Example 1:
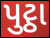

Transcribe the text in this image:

પુટ્ઠા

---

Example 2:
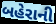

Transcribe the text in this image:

બહેરાની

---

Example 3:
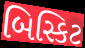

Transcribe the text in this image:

બિસ્કિટ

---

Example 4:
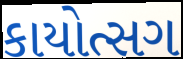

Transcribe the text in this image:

કાયોત્સગ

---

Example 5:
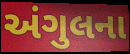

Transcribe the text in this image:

અંગુલના